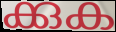
ക്കുക